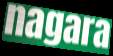
nagara